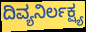
ದಿವ್ಯನಿರ್ಲಕ್ಷ್ಯ